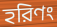
হরিণং